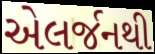
એલર્જનથી